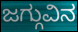
ಜಗ್ಗುವಿನ